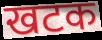
खटक